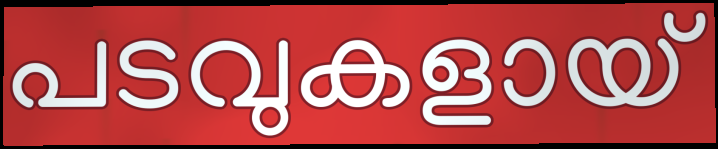
പടവുകളായ്